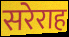
सरेराह